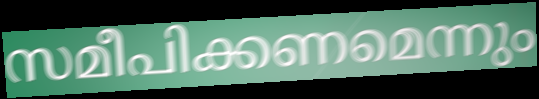
സമീപിക്കണമെന്നും